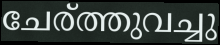
ചേര്ത്തുവച്ചു